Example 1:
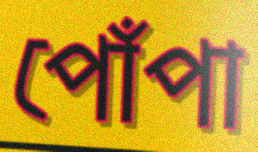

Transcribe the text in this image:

পোঁপা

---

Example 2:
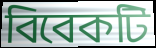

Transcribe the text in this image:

বিবেকটি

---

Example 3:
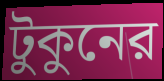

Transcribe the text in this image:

টুকুনের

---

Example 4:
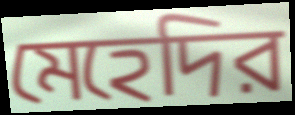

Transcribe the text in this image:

মেহেদির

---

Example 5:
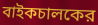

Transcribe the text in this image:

বাইকচালকের